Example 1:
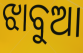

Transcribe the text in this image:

ଝାବୁଆ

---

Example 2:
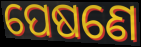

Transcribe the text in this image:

ପେଷଣେ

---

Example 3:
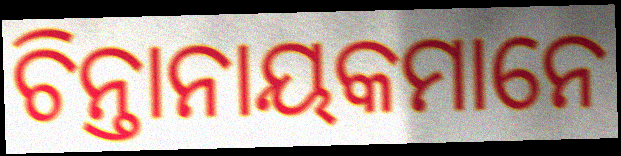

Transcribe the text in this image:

ଚିନ୍ତାନାୟକମାନେ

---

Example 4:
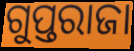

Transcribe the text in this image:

ଗୁପ୍ତରାଜା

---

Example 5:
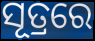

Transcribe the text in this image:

ସୂତ୍ରରେ